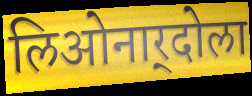
लिओनार्दोला